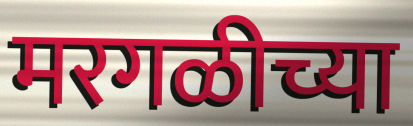
मरगळीच्या